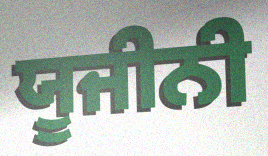
ਯੂਜੀਨੀ